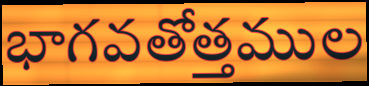
భాగవతోత్తముల